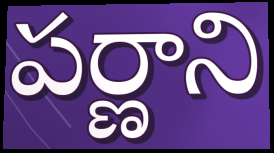
పర్ణాని